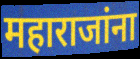
महाराजांना